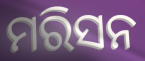
ମରିସନ